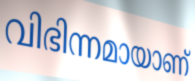
വിഭിന്നമായാണ്